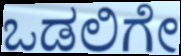
ಒಡಲಿಗೇ